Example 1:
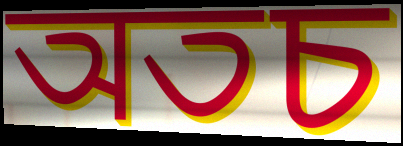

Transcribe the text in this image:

অতচ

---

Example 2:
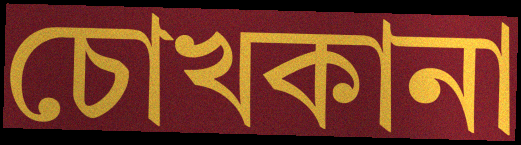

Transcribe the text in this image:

চোখকানা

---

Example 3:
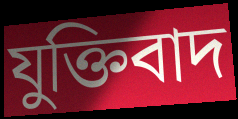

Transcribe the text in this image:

যুক্তিবাদ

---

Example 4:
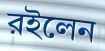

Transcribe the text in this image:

রইলেন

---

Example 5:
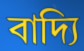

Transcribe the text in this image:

বাদ্যি